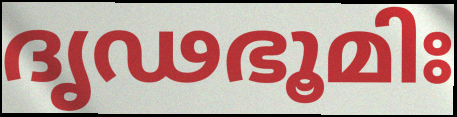
ദൃഢഭൂമിഃ